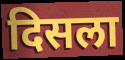
दिसला